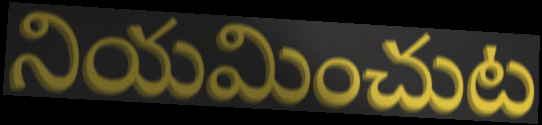
నియమించుట